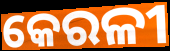
କେରଳୀ